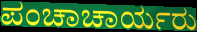
ಪಂಚಾಚಾರ್ಯರು